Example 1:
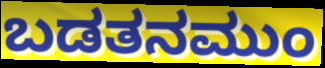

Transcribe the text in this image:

ಬಡತನಮುಂ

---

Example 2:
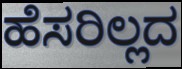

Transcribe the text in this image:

ಹೆಸರಿಲ್ಲದ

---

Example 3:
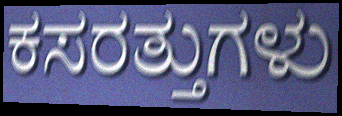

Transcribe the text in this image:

ಕಸರತ್ತುಗಳು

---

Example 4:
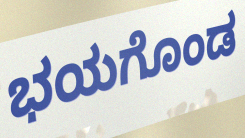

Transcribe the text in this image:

ಭಯಗೊಂಡ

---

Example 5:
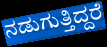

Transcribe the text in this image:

ನಡುಗುತ್ತಿದ್ದರೆ